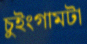
চুইংগামটা